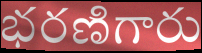
భరణిగారు